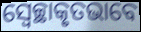
ସ୍ୱେଚ୍ଛାକୃତଭାବେ